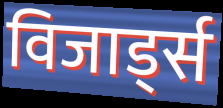
विजार्ड्स